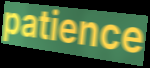
patience